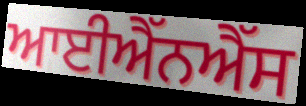
ਆਈਐੱਨਐੱਸ